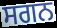
ਸਗਨ